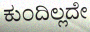
ಕುಂದಿಲ್ಲದೇ